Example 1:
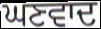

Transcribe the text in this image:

ਘਣਵਾਦ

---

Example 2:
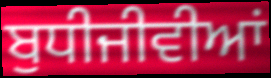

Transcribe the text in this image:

ਬੁਧੀਜੀਵੀਆਂ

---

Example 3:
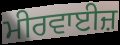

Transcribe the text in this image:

ਮੀਰਵਾਈਜ਼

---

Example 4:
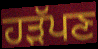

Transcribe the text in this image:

ਹੜੱਪਣ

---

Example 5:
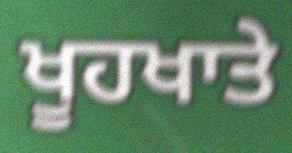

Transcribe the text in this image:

ਖੂਹਖਾਤੇ